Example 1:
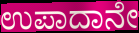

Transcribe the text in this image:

ಉಪಾದಾನೇ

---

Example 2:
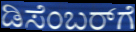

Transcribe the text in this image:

ಡಿಸೆಂಬರ್‌ಗೆ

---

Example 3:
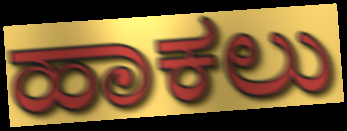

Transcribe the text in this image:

ಹಾಕಲು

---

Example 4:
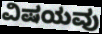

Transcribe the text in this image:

ವಿಷಯವು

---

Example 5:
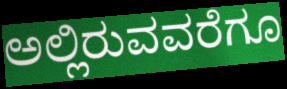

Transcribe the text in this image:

ಅಲ್ಲಿರುವವರೆಗೂ